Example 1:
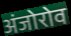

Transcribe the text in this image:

अंजोरोव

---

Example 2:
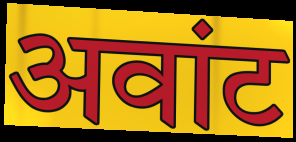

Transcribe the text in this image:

अवांट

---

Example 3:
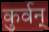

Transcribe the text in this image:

कुर्वन्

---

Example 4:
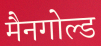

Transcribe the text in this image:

मैनगोल्ड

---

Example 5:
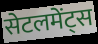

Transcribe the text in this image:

सेटलमेंट्स